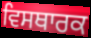
ਵਿਸਥਾਰਕ